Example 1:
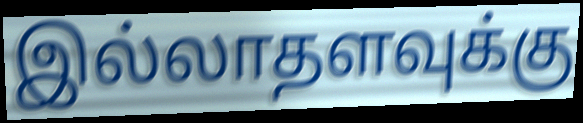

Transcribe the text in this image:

இல்லாதளவுக்கு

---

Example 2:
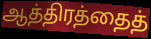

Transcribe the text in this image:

ஆத்திரத்தைத்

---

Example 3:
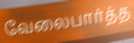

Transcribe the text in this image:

வேலைபார்த்த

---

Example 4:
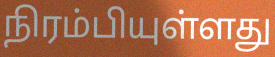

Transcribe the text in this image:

நிரம்பியுள்ளது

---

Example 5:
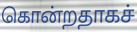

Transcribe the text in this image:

கொன்றதாகச்